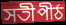
সতীপীঠ